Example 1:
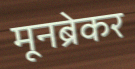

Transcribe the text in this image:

मूनब्रेकर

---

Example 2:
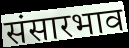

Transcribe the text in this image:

संसारभाव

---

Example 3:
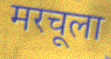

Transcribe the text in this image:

मरचूला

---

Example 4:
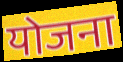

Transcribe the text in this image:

योजना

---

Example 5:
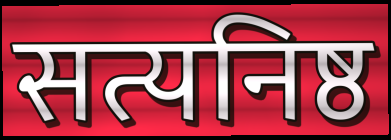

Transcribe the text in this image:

सत्यनिष्ठ